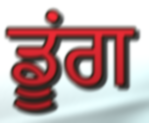
ਡੂਂਗ